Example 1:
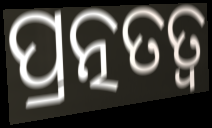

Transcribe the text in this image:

ପ୍ରତ୍ନତତ୍ୱ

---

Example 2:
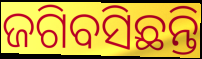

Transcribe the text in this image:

ଜଗିବସିଛନ୍ତି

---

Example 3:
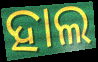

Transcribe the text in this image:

ହାଲ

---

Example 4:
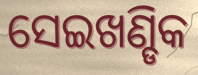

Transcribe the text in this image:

ସେଇଖଣ୍ଡିକ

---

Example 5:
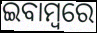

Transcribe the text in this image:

ଇବାମ୍ବରେ